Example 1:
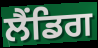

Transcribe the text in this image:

ਲੈਂਡਿਗ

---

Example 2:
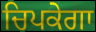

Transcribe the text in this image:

ਚਿਪਕੇਗਾ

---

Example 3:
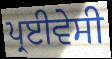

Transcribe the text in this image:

ਪ੍ਰਈਵੇਸੀ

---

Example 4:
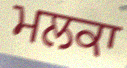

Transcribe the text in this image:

ਮਲਕਾ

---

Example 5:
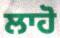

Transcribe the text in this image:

ਲਾਹੋ